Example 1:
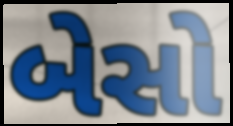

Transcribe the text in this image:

બેસો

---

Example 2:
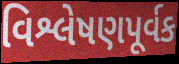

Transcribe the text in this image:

વિશ્લેષણપૂર્વક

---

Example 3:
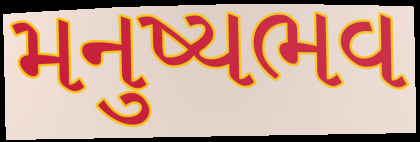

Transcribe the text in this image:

મનુષ્યભવ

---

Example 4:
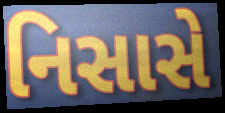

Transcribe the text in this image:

નિસાસે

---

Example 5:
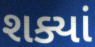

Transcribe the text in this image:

શક્યાં